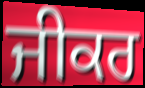
ਜੀਕਰ